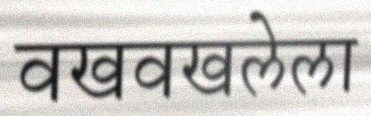
वखवखलेला